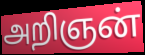
அறிஞன்